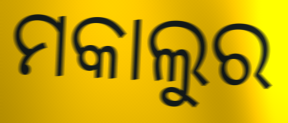
ମକାଲୁର